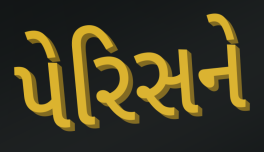
પેરિસને